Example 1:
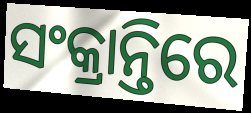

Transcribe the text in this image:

ସଂକ୍ରାନ୍ତିରେ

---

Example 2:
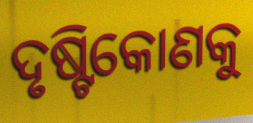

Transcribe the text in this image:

ଦୃଷ୍ଟିକୋଣକୁ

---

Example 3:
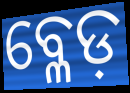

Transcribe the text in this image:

ବ୍ଳେଡ଼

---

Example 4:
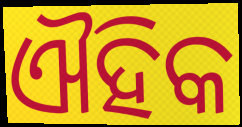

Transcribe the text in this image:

ଐହିକ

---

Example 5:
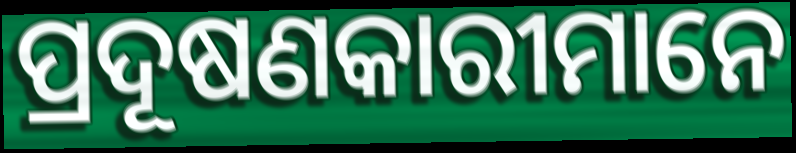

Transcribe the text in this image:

ପ୍ରଦୂଷଣକାରୀମାନେ